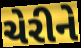
ચેરીને